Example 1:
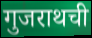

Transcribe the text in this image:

गुजराथची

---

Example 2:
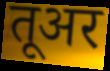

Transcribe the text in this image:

तूअर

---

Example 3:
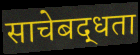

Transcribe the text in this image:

साचेबद्धता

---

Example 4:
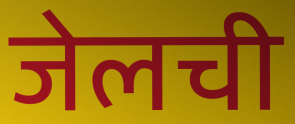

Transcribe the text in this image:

जेलची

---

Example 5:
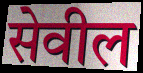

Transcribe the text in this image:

सेवील